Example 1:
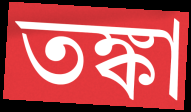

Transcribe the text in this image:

তঙ্কা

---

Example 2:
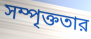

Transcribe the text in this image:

সম্পৃক্ততার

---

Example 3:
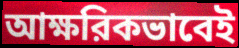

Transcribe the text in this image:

আক্ষরিকভাবেই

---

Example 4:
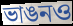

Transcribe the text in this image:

ভাঙনও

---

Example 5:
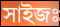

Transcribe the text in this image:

সাইজঃ